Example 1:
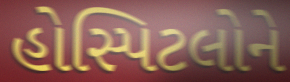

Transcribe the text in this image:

હોસ્પિટલોને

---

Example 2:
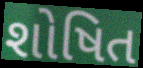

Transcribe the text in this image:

શોષિત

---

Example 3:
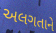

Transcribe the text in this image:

અલગતાને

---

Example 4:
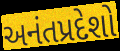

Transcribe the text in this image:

અનંતપ્રદેશો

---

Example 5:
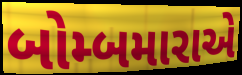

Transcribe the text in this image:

બોમ્બમારાએ